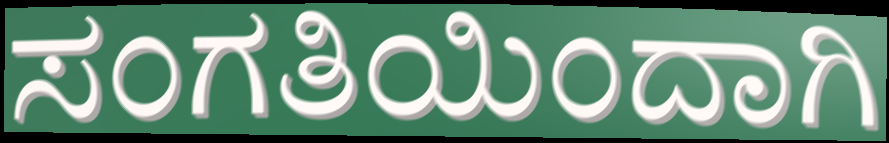
ಸಂಗತಿಯಿಂದಾಗಿ